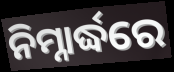
ନିମ୍ନାର୍ଦ୍ଧରେ